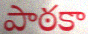
పాఠకా